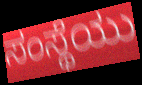
ಸಂಸ್ಥೆಯು